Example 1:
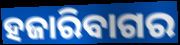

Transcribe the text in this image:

ହଜାରିବାଗର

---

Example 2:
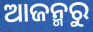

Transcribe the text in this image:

ଆଜନ୍ମରୁ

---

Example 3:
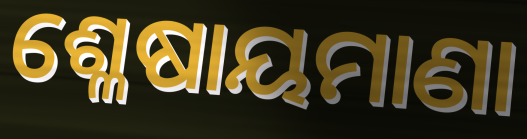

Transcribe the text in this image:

ଶ୍ଳେଷାୟମାଣା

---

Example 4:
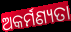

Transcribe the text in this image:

ଅକର୍ମଣ୍ୟତା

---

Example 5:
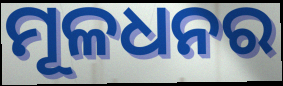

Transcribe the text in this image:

ମୂଳଧନର